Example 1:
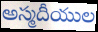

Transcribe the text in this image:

అస్మదీయుల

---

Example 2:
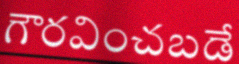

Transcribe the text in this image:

గౌరవించబడే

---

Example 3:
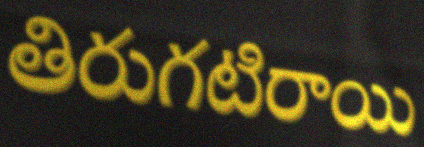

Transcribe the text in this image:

తిరుగటిరాయి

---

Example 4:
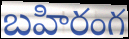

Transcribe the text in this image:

బహిరంగ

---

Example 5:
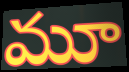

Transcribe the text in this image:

మూ